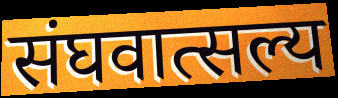
संघवात्सल्य